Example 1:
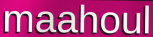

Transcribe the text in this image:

maahoul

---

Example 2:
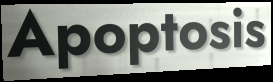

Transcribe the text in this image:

Apoptosis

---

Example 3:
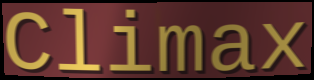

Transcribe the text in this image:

Climax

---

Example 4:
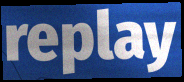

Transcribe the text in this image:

replay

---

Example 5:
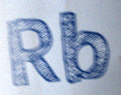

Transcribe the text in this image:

Rb